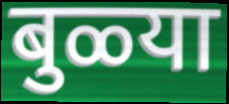
बुळ्या